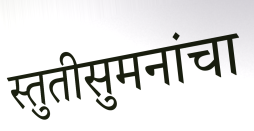
स्तुतीसुमनांचा